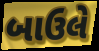
બાઉલે